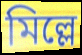
মিল্লে